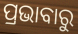
ପ୍ରଭାବାରୁ